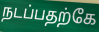
நடப்பதற்கே